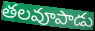
తలవూపాడు